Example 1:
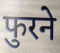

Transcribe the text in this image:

फुरने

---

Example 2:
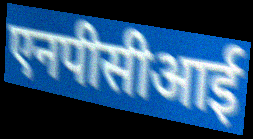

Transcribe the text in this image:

एनपीसीआई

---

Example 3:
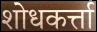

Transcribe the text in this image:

शोधकर्त्ता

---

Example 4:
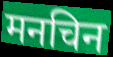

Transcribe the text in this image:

मनचिन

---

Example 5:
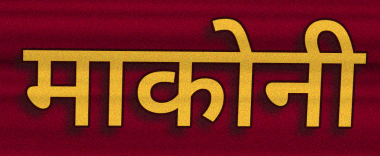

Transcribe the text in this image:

माकोनी